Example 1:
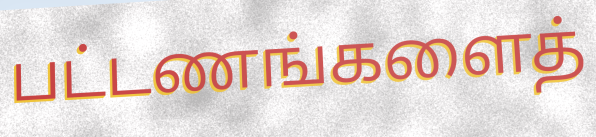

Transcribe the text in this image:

பட்டணங்களைத்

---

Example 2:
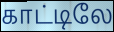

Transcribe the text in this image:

காட்டிலே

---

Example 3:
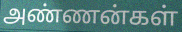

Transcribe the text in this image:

அண்ணன்கள்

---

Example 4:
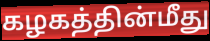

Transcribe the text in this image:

கழகத்தின்மீது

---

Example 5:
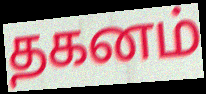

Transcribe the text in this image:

தகனம்